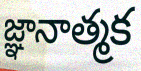
జ్ఞానాత్మక